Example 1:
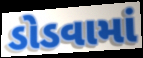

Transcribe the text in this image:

ડોડવામાં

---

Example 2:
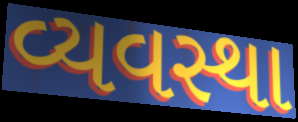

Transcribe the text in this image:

વ્યવસ્થા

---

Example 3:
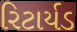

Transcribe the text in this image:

રિટાર્યડ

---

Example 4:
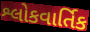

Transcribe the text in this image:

શ્લોકવાર્તિક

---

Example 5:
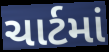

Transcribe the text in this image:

ચાર્ટમાં